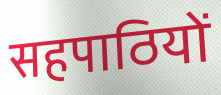
सहपाठियों